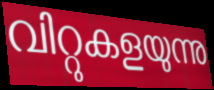
വിറ്റുകളയുന്നു